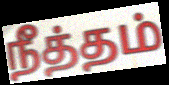
நீத்தம்